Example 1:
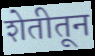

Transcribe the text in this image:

शेतीतून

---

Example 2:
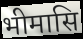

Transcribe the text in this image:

भीमासि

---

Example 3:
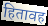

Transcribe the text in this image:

हितावह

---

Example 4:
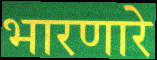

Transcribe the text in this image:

भारणारे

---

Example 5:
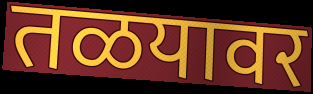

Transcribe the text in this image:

तळयावर